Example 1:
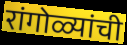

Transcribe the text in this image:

रांगोळ्यांची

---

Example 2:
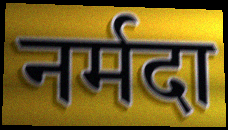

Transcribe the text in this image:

नर्मदा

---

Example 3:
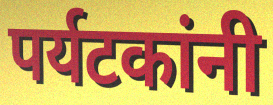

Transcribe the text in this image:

पर्यटकांनी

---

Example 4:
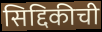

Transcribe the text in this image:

सिद्दिकीची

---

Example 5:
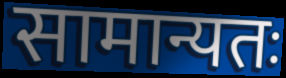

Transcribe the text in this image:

सामान्यतः